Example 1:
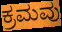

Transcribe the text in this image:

ಕ್ರಮವು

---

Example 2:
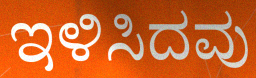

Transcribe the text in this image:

ಇಳಿಸಿದವು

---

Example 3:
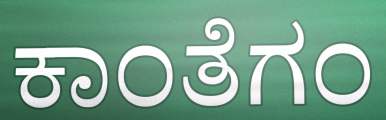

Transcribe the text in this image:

ಕಾಂತೆಗಂ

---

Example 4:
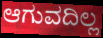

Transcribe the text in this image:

ಆಗುವದಿಲ್ಲ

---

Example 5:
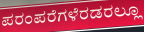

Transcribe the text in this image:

ಪರಂಪರೆಗಳೆರಡರಲ್ಲೂ